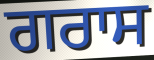
ਗਰਾਸ